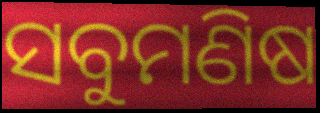
ସବୁମଣିଷ